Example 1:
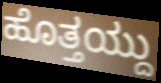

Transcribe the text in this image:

ಹೊತ್ತಯ್ದು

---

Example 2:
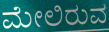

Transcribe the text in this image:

ಮೇಲಿರುವ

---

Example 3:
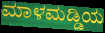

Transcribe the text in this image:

ಮಾಳಮಡ್ಡಿಯ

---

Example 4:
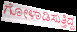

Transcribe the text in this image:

ಗೋಳಾಡಿಸುತ್ತಿದ್ದ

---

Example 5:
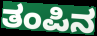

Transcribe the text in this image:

ತಂಪಿನ